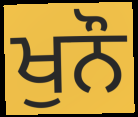
ਖੁਨੌ